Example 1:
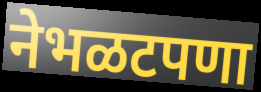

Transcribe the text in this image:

नेभळटपणा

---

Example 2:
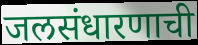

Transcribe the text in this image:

जलसंधारणाची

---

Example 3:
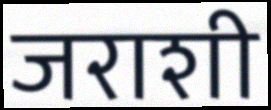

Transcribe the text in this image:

जराशी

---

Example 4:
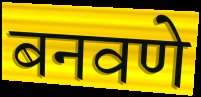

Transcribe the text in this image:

बनवणे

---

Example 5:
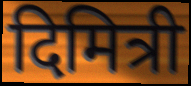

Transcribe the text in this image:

दिमित्री